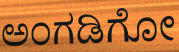
ಅಂಗಡಿಗೋ